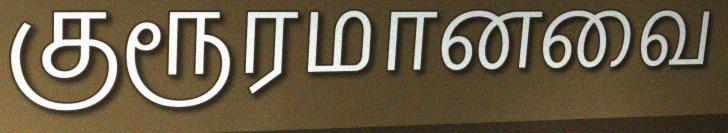
குரூரமானவை